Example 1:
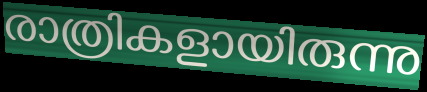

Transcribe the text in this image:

രാത്രികളായിരുന്നു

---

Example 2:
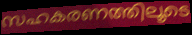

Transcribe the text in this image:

സഹകരണത്തിലൂടെ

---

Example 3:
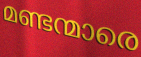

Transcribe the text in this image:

മണ്ടന്മാരെ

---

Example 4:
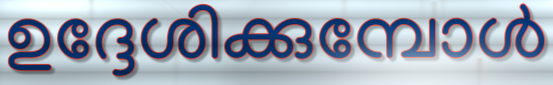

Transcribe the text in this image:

ഉദ്ദേശിക്കുമ്പോൾ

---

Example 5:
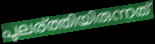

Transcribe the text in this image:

പുലര്ത്തിയിരുന്നത്